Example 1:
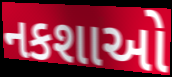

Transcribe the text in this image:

નકશાઓ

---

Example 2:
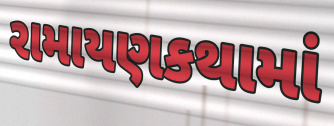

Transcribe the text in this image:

રામાયણકથામાં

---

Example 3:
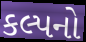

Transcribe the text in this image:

કલ્પનો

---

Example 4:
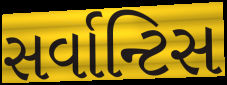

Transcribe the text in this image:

સર્વાન્ટિસ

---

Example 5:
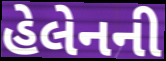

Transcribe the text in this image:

હેલેનની